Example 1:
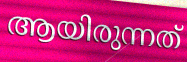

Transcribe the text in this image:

ആയിരുന്നത്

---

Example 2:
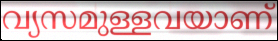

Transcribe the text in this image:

വ്യസമുള്ളവയാണ്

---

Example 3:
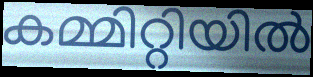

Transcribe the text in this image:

കമ്മിറ്റിയിൽ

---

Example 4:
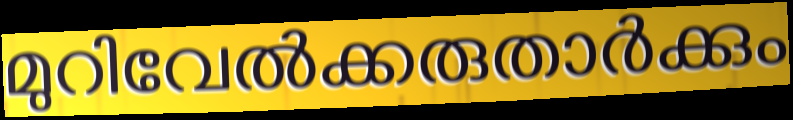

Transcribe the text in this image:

മുറിവേൽക്കരുതാർക്കും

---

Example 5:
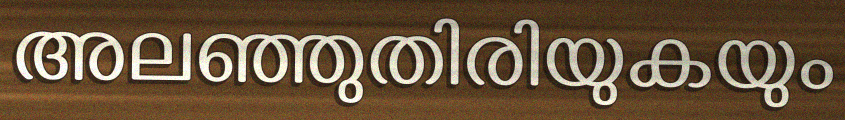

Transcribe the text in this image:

അലഞ്ഞുതിരിയുകയും